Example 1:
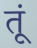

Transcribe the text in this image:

तूं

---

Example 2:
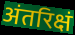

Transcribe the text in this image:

अंतरिक्षं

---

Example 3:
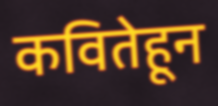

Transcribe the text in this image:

कवितेहून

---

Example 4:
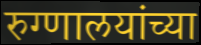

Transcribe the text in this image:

रुग्णालयांच्या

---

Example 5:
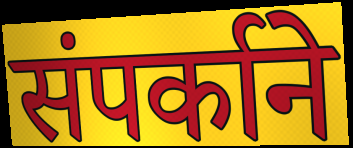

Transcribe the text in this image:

संपर्काने